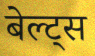
बेल्ट्स